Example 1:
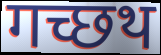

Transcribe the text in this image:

गच्छथ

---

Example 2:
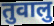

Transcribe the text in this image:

तुवालु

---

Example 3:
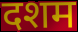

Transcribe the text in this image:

दशम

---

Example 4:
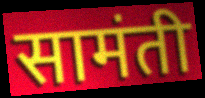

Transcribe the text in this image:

सामंती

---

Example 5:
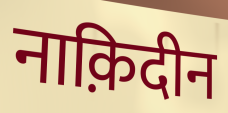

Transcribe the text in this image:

नाक़िदीन